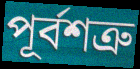
পূর্বশত্রু